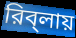
রিব্‌লায়